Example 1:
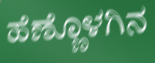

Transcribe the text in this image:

ಹೆಣ್ಣೊಳಗಿನ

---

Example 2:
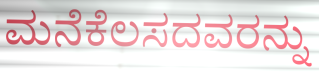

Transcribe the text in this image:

ಮನೆಕೆಲಸದವರನ್ನು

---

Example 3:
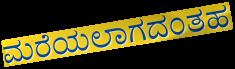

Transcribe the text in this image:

ಮರೆಯಲಾಗದಂತಹ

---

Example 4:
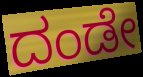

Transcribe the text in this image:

ದಂಡೇ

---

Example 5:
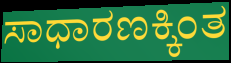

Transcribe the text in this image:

ಸಾಧಾರಣಕ್ಕಿಂತ